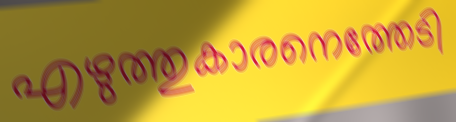
എഴുത്തുകാരനെത്തേടി